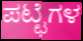
ಪಟ್ಟೆಗಳ